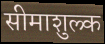
सीमाशुल्क